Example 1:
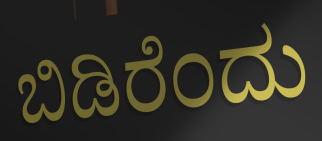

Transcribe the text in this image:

ಬಿಡಿರೆಂದು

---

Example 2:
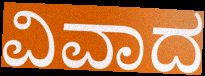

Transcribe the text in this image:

ವಿವಾದ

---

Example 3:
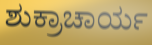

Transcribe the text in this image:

ಶುಕ್ರಾಚಾರ್ಯ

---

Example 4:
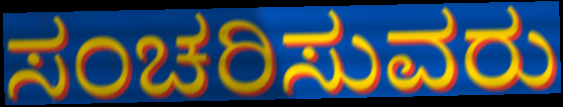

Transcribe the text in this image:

ಸಂಚರಿಸುವರು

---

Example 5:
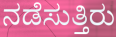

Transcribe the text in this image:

ನಡೆಸುತ್ತಿರು